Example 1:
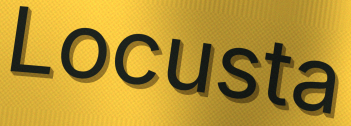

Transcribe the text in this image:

Locusta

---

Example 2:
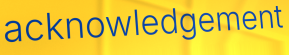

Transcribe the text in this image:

acknowledgement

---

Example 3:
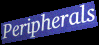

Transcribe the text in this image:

Peripherals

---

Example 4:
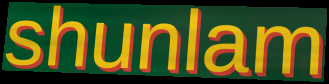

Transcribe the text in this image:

shunlam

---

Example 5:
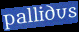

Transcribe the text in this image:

pallidus